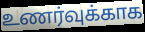
உணர்வுக்காக